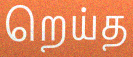
றெய்த